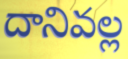
దానివల్ల